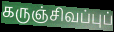
கருஞ்சிவப்புப்